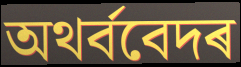
অথৰ্ববেদৰ